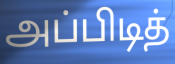
அப்பிடித்